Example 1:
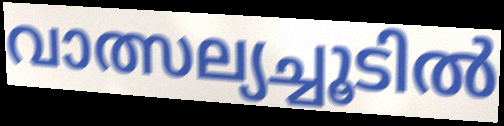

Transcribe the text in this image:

വാത്സല്യച്ചൂടിൽ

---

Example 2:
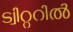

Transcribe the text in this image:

ട്വിറ്ററിൽ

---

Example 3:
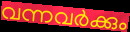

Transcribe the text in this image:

വന്നവർക്കും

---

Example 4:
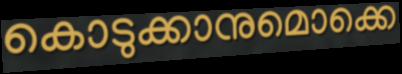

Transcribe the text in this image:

കൊടുക്കാനുമൊക്കെ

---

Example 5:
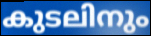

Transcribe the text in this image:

കുടലിനും